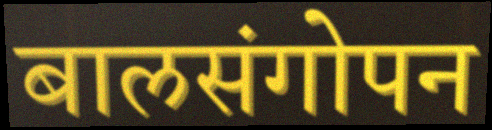
बालसंगोपन